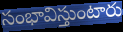
సంభావిస్తుంటారు